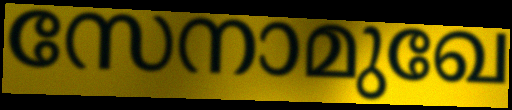
സേനാമുഖേ